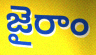
జైరాం